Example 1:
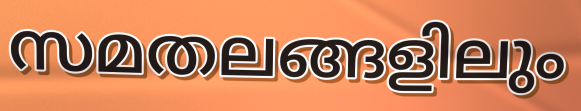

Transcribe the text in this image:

സമതലങ്ങളിലും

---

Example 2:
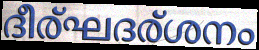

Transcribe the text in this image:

ദീര്ഘദര്ശനം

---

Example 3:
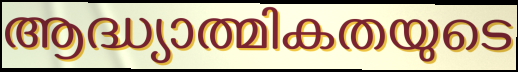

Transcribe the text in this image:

ആദ്ധ്യാത്മികതയുടെ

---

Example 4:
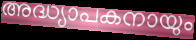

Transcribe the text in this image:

അദ്ധ്യാപകനായും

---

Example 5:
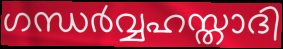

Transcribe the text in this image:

ഗന്ധർവ്വഹസ്താദി